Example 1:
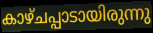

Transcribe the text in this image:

കാഴ്ചപ്പാടായിരുന്നു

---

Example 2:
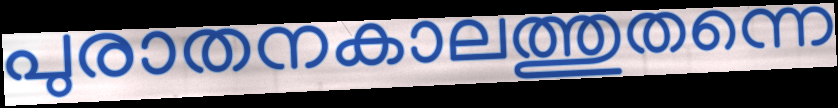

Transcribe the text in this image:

പുരാതനകാലത്തുതന്നെ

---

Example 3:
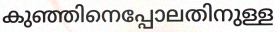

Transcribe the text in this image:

കുഞ്ഞിനെപ്പോലതിനുള്ള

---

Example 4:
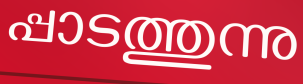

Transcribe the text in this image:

പ്പാടത്തുന്നു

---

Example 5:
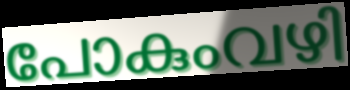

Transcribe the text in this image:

പോകുംവഴി